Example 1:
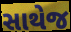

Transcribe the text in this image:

સાથેજ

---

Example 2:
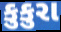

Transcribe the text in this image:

કુકુરા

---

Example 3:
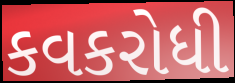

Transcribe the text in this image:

કવકરોધી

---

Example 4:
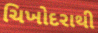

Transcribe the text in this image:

ચિખોદરાથી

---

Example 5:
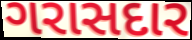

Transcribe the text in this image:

ગરાસદાર